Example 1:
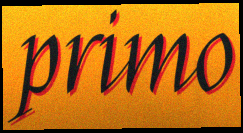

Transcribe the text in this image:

primo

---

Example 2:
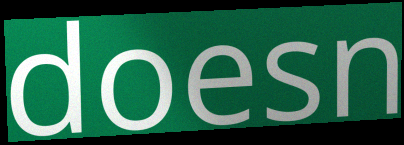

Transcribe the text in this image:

doesn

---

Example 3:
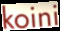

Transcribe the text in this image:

koini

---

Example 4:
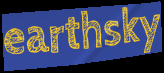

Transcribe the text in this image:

earthsky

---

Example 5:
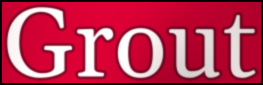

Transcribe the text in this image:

Grout